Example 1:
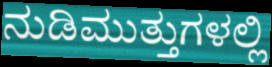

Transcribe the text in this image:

ನುಡಿಮುತ್ತುಗಳಲ್ಲಿ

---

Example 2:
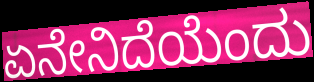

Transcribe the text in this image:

ಏನೇನಿದೆಯೆಂದು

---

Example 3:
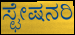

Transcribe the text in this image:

ಸ್ಟೇಷನರಿ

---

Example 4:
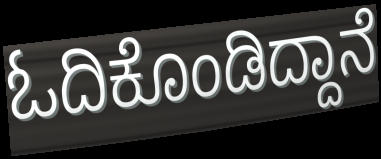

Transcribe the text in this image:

ಓದಿಕೊಂಡಿದ್ದಾನೆ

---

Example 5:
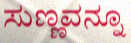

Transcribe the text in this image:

ಸುಣ್ಣವನ್ನೂ